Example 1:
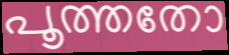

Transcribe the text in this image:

പൂത്തതോ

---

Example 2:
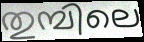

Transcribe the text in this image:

തുമ്പിലെ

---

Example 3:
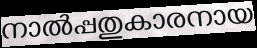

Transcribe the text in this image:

നാൽപ്പതുകാരനായ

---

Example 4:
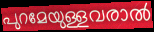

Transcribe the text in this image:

പുറമേയുള്ളവരാൽ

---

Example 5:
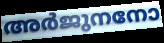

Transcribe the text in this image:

അർജുനനോ